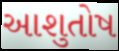
આશુતોષ